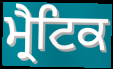
ਮ੍ਰੈਟਿਕ